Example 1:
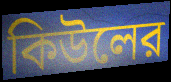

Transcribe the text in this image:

কিউলের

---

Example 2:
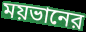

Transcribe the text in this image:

ময়ভানের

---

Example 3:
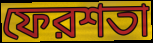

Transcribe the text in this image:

ফেরশতা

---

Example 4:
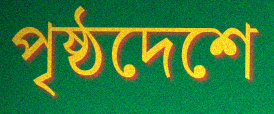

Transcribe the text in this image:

পৃষ্ঠদেশে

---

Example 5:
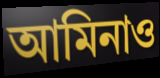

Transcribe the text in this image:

আমিনাও